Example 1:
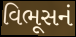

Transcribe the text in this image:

વિભૂસનં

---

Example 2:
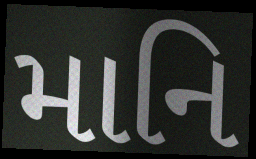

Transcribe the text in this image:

માનિ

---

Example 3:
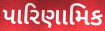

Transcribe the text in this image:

પારિણામિક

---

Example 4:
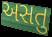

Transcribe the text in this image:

અસતુ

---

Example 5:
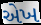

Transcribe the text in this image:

એખ